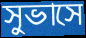
সুভাসে